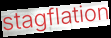
stagflation